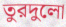
তুরদুলো